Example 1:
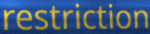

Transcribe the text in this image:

restriction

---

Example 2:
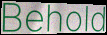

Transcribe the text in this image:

Behold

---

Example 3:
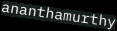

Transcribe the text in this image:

ananthamurthy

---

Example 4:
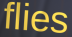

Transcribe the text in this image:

flies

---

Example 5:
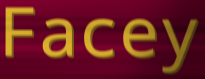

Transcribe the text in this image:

Facey